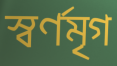
স্বর্ণমৃগ